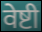
वेष्टी